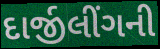
દાર્જીલીંગની